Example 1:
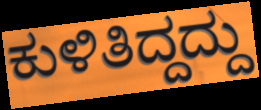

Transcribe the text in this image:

ಕುಳಿತಿದ್ದದ್ದು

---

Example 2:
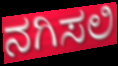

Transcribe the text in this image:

ನಗಿಸಲಿ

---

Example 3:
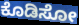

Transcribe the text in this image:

ಕೊಡಿಸೋ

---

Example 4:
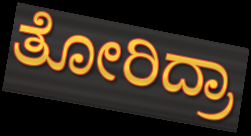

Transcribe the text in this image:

ತೋರಿದ್ರಾ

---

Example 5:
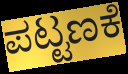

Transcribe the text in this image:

ಪಟ್ಟಣಕೆ